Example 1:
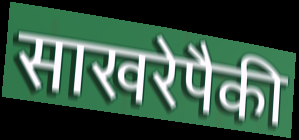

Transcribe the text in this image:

साखरेपैकी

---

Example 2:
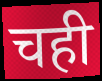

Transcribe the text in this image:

चही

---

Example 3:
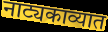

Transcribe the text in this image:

नाट्यकाव्यात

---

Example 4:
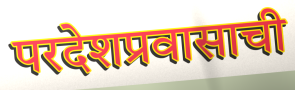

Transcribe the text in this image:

परदेशप्रवासाची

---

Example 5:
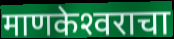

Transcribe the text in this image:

माणकेश्वराचा